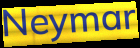
Neymar